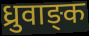
ध्रुवाङ्क